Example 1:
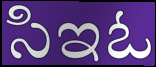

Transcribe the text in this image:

సిఇఓ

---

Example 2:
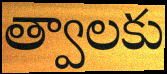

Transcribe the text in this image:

త్వాలకు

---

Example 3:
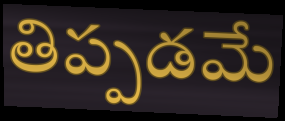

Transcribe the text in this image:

తిప్పడమే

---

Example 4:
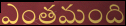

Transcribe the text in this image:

ఎంతమంది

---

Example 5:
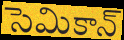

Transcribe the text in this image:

సెమికాన్